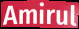
Amirul